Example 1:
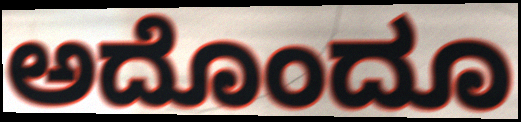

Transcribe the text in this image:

ಅದೊಂದೂ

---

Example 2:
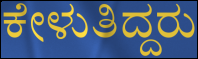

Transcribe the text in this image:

ಕೇಳುತಿದ್ದರು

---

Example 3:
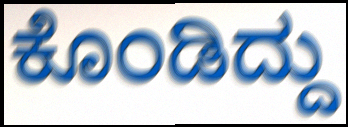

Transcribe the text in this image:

ಕೊಂಡಿದ್ದು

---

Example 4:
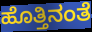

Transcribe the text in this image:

ಹೊತ್ತಿನಂತೆ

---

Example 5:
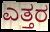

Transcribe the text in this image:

ಎತ್ತರ